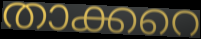
താക്കറെ